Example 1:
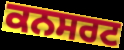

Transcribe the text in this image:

ਕਨਸਰਟ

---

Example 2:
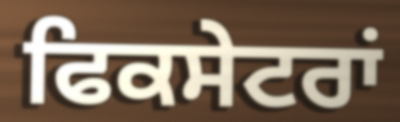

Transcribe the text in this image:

ਫਿਕਸੇਟਰਾਂ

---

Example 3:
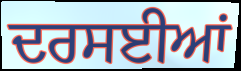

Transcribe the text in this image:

ਦਰਸਈਆਂ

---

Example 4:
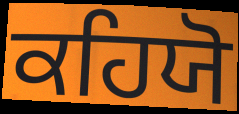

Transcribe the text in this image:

ਕਹਿਯੋ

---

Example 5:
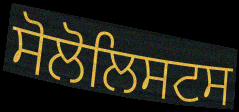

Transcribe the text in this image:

ਸੋਲੋਲਿਸਟਸ